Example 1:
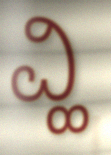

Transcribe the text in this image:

ವ್ಹಿ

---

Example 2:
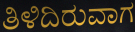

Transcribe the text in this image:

ತಿಳಿದಿರುವಾಗ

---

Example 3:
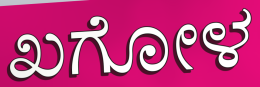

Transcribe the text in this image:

ಖಗೋಳ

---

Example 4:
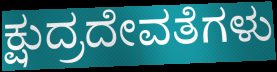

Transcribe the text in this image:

ಕ್ಷುದ್ರದೇವತೆಗಳು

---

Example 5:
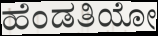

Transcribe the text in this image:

ಹೆಂಡತಿಯೋ